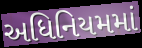
અધિનિયમમાં